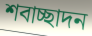
শবাচ্ছাদন